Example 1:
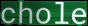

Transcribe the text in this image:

chole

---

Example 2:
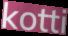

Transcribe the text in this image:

kotti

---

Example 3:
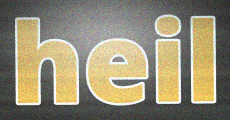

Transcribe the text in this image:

heil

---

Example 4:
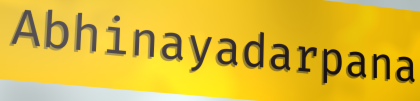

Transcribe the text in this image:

Abhinayadarpana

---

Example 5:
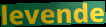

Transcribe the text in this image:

levende